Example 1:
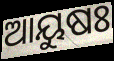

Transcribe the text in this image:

ଆୟୁଷଃ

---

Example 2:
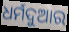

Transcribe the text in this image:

ଧର୍ମଦୁଆର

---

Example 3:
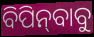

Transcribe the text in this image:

ବିପିନ୍‌ବାବୁ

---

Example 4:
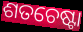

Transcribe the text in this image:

ଶତଚେଷ୍ଟା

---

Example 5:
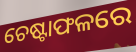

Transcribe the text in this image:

ଚେଷ୍ଟାଫଳରେ